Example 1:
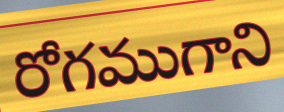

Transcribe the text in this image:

రోగముగాని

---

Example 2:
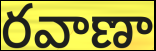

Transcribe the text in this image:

రవాణా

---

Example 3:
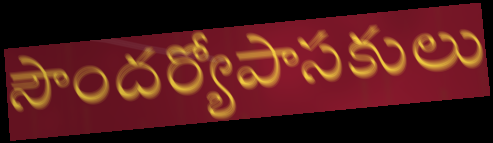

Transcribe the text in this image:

సౌందర్యోపాసకులు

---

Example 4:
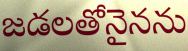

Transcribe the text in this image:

జడలతోనైనను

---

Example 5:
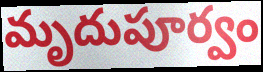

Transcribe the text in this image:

మృదుపూర్వం